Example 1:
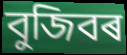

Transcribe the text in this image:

বুজিবৰ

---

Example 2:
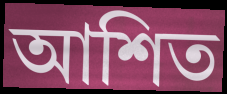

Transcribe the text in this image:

আশিত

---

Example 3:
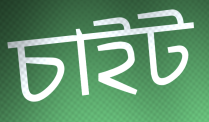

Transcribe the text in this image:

চাইট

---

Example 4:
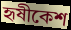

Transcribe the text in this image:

হৃষীকেশ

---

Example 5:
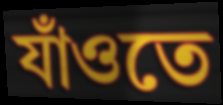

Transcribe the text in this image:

যাঁওতে